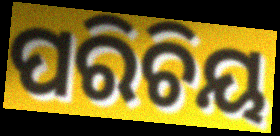
ପରିଚିୟ